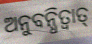
ଅନୁବନ୍ଧିତ୍ଵାତ୍